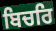
ਬਿਚਰਿ